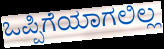
ಒಪ್ಪಿಗೆಯಾಗಲಿಲ್ಲ